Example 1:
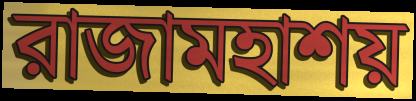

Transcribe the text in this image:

রাজামহাশয়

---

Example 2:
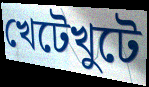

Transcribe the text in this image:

খেটেখুটে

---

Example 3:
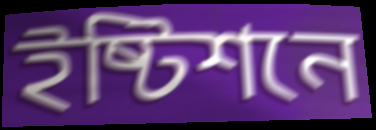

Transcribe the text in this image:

ইষ্টিশনে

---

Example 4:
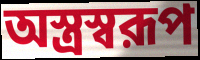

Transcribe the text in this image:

অস্ত্রস্বরূপ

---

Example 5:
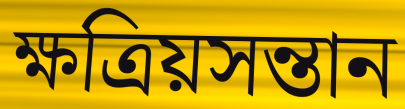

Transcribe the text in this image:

ক্ষত্রিয়সন্তান